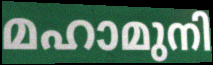
മഹാമുനി